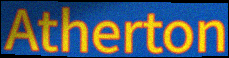
Atherton